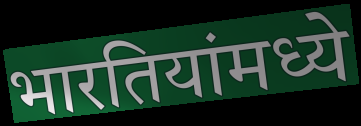
भारतियांमध्ये